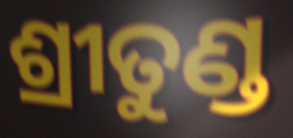
ଶ୍ରୀତୁଣ୍ଡ